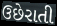
ઉછેરાતી